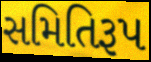
સમિતિરૂપ